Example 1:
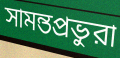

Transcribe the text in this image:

সামন্তপ্রভুরা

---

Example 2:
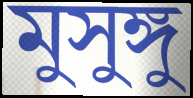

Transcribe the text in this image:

মুসুঙ্গু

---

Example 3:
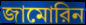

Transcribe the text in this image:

জামোরিন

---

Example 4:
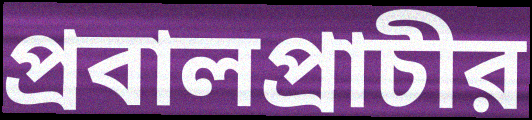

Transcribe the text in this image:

প্রবালপ্রাচীর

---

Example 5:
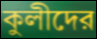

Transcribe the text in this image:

কুলীদের